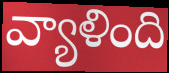
వ్యాళింది